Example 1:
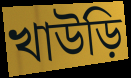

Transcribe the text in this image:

খাউড়ি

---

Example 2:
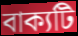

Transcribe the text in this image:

বাক্যটি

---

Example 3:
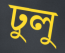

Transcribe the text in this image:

ঢুলু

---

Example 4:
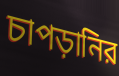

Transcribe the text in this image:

চাপড়ানির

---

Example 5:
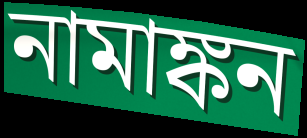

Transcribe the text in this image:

নামাঙ্কন